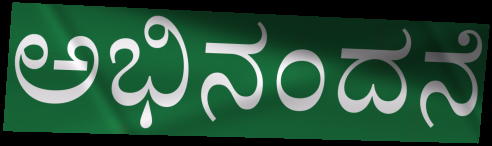
ಅಭಿನಂದನೆ